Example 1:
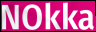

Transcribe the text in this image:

NOkka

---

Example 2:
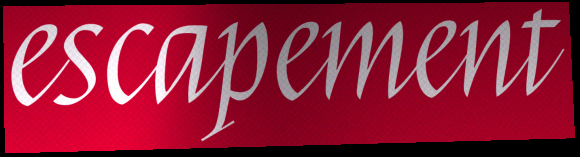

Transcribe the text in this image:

escapement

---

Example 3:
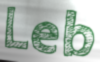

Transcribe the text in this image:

Leb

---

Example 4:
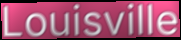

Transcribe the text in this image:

Louisville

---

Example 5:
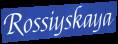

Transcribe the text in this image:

Rossiyskaya